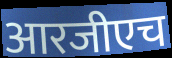
आरजीएच